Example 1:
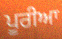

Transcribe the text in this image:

ਪੂਰੀਆ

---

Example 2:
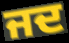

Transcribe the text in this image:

ਜਦ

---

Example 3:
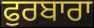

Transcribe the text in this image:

ਫੁਰਬਾਰਾ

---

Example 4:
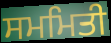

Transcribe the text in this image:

ਸਮਮਿਤੀ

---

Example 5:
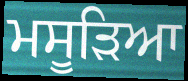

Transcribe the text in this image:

ਮਸੂੜਿਆ